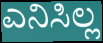
ಎನಿಸಿಲ್ಲ